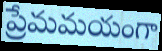
ప్రేమమయంగా